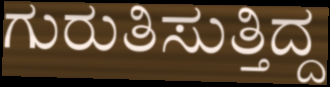
ಗುರುತಿಸುತ್ತಿದ್ದ